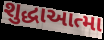
શુદ્ધાઆત્મા